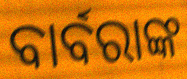
ବାର୍ବରାଙ୍କ